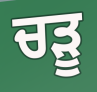
ਚੜੂ